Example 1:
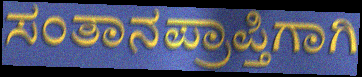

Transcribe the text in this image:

ಸಂತಾನಪ್ರಾಪ್ತಿಗಾಗಿ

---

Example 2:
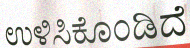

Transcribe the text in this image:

ಉಳಿಸಿಕೊಂಡಿದೆ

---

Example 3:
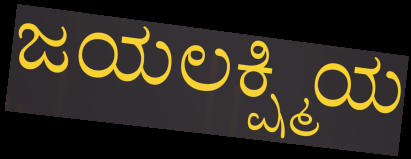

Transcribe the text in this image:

ಜಯಲಕ್ಷ್ಮಿಯ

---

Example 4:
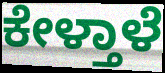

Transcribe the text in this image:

ಕೇಳ್ತಾಳೆ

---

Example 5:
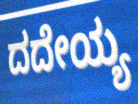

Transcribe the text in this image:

ದದೇಯ್ಯ